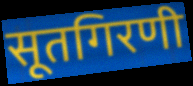
सूतगिरणी